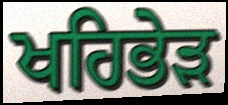
ਖਹਿਭੇੜ